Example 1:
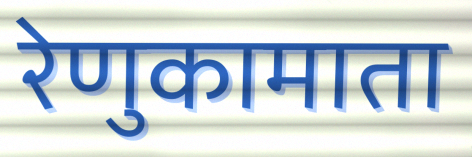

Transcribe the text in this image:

रेणुकामाता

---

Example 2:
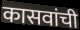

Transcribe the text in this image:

कासवांची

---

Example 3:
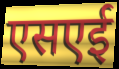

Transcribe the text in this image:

एसएई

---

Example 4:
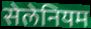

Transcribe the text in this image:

सेलेनियम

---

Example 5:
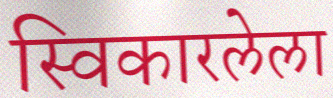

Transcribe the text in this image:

स्विकारलेला